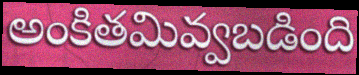
అంకితమివ్వబడింది